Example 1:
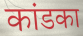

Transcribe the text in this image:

कांडका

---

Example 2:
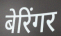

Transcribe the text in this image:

बेरिंगर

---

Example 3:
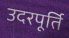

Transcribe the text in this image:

उदरपूर्ति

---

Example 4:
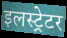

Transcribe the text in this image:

इलस्ट्रेटर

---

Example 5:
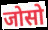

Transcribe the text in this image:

जोसो